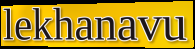
lekhanavu